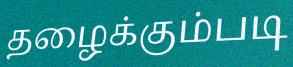
தழைக்கும்படி